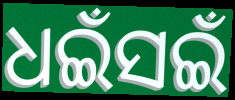
ଧଇଁସଇଁ